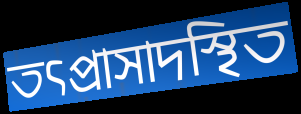
তৎপ্রাসাদস্থিত